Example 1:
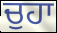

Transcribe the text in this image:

ਚੁਹਾ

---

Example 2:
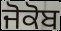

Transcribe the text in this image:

ਜੋਕੋਬ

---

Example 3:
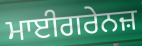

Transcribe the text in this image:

ਮਾਈਗਰੇਨਜ਼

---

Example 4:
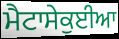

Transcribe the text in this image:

ਮੈਟਾਸੇਕੁਈਆ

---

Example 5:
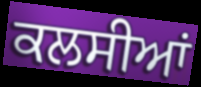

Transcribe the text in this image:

ਕਲਸੀਆਂ